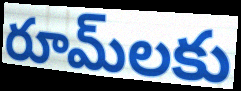
రూమ్‌లకు